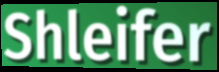
Shleifer